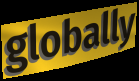
globally